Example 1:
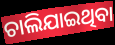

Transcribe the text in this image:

ଚାଲିଯାଇଥିବା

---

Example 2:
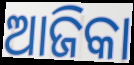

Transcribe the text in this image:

ଆଜିକା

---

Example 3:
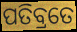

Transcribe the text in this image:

ପତିବ୍ରତେ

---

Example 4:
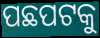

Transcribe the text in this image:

ପଛପଟକୁ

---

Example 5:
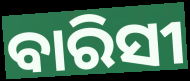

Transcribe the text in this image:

ବାରିସୀ